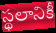
స్థలానికీ